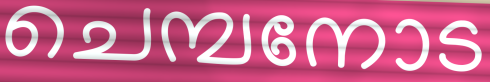
ചെമ്പനോട